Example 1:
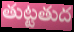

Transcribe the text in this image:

తుట్టతుద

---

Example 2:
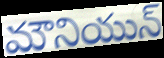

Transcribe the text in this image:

మౌనియున్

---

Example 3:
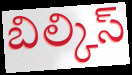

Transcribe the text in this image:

బిల్కిస్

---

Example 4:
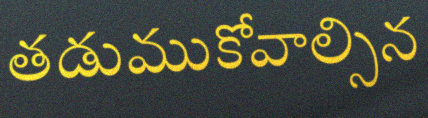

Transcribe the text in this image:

తడుముకోవాల్సిన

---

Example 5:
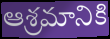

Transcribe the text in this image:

ఆశ్రమానికి